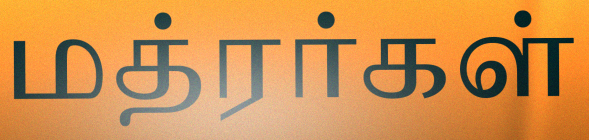
மத்ரர்கள்